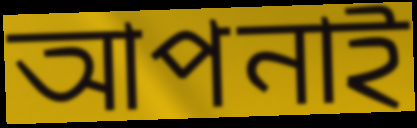
আপনাই